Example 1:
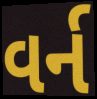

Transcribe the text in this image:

વર્ન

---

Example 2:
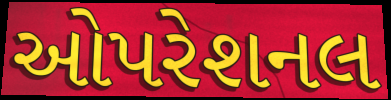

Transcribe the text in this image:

ઓપરેશનલ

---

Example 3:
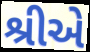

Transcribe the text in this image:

શ્રીએ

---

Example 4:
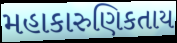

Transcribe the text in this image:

મહાકારુણિકતાય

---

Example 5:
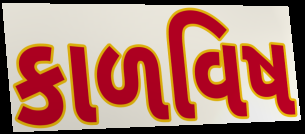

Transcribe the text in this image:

કાળવિષ